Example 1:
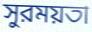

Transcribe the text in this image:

সুরময়তা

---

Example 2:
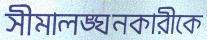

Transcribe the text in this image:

সীমালঙ্ঘনকারীকে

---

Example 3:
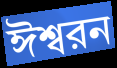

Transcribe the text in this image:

ঈশ্বরন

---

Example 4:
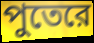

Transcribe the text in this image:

পুতেরে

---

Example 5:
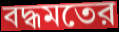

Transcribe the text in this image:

বদ্ধমতের